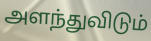
அளந்துவிடும்